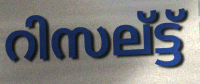
റിസല്ട്ട്